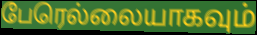
பேரெல்லையாகவும்